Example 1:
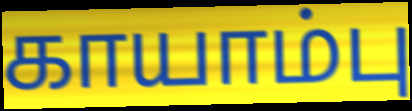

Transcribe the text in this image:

காயாம்பு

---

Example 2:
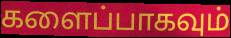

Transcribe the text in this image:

களைப்பாகவும்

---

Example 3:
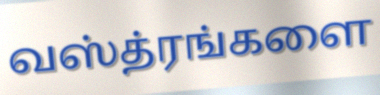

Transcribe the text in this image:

வஸ்த்ரங்களை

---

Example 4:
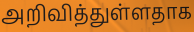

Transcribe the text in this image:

அறிவித்துள்ளதாக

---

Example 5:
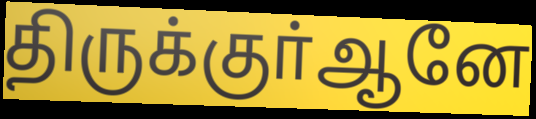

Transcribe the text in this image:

திருக்குர்ஆனே